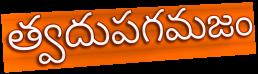
త్వదుపగమజం